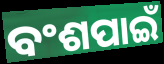
ବଂଶପାଇଁ